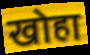
खोहा